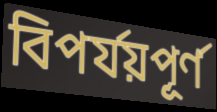
বিপর্যয়পূর্ণ